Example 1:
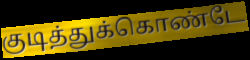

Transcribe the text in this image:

குடித்துக்கொண்டே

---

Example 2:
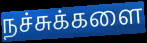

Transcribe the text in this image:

நச்சுக்களை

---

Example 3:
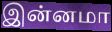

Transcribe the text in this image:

இன்னமா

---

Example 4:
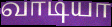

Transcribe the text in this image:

வாடியா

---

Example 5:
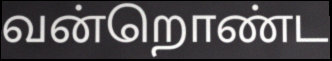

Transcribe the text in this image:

வன்றொண்ட